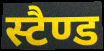
स्टैण्ड